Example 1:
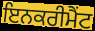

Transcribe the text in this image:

ਇਨਕਰੀਮੈਂਟ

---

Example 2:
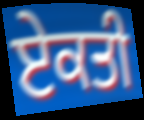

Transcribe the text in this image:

ਏਕਤੀ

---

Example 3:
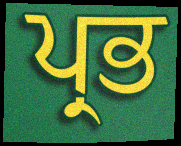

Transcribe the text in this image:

ਪ੍ਰਭ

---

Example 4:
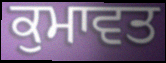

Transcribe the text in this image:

ਕੁਮਾਵਤ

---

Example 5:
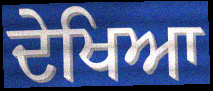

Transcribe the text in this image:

ਦੇਖਿਆ